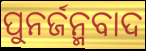
ପୁନର୍ଜନ୍ମବାଦ